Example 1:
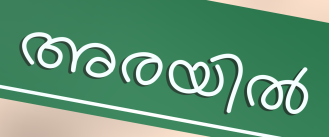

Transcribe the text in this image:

അരയിൽ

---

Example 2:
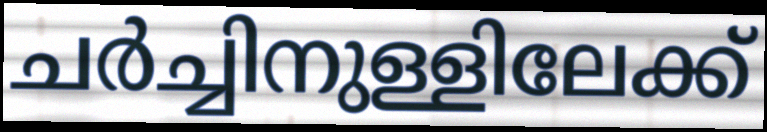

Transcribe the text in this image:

ചർച്ചിനുള്ളിലേക്ക്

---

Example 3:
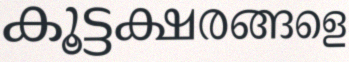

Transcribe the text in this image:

കൂട്ടക്ഷരങ്ങളെ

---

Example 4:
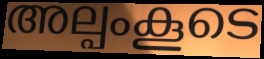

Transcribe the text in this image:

അല്പംകൂടെ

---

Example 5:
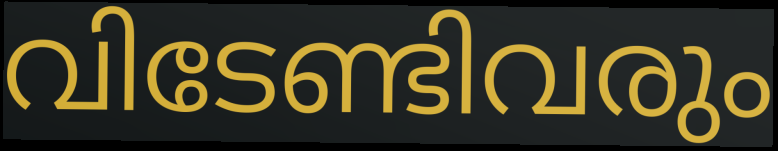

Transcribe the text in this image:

വിടേണ്ടിവരും